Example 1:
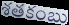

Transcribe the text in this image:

శతకంబు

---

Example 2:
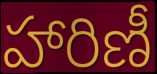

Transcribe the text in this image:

హారిణీ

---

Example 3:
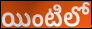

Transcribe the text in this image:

యింటిలో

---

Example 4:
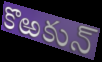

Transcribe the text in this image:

కొఱకున్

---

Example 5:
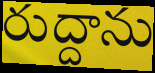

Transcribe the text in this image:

రుద్దాను